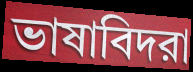
ভাষাবিদরা